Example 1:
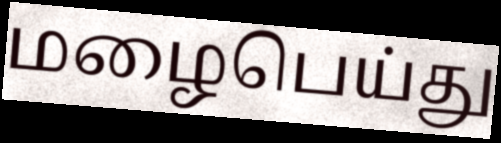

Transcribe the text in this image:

மழைபெய்து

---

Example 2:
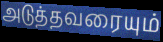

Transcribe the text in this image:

அடுத்தவரையும்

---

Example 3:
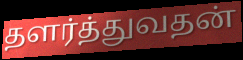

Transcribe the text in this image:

தளர்த்துவதன்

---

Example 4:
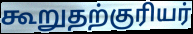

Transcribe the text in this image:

கூறுதற்குரியர்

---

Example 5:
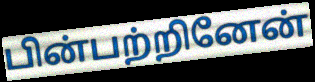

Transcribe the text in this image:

பின்பற்றினேன்